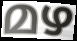
മഴ